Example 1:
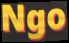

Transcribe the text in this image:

Ngo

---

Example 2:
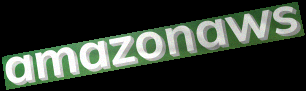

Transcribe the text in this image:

amazonaws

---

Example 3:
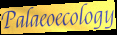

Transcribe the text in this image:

Palaeoecology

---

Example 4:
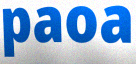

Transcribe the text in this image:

paoa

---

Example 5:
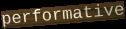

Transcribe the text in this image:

performative